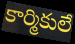
కార్మికులే